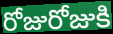
రోజురోజుకి